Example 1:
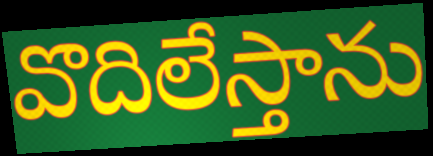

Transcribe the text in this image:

వొదిలేస్తాను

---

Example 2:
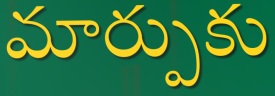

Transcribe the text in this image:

మార్పుకు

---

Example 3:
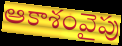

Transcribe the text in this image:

ఆకాశంవైపు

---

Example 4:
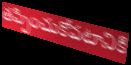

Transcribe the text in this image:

తప్పించుకోవటానికి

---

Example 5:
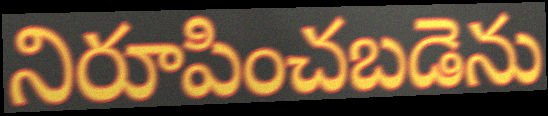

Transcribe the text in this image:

నిరూపించబడెను